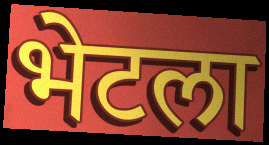
भेटला